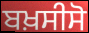
ਬਖ਼ਸੀਸੋ